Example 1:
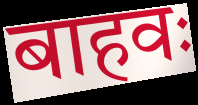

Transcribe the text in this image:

बाहवः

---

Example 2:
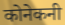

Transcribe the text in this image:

कोनेकनी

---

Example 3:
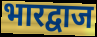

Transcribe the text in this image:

भारद्वाज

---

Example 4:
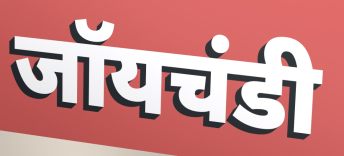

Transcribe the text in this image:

जॉयचंडी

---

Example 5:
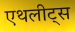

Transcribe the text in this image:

एथलीट्स